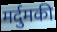
मर्दुमकी